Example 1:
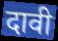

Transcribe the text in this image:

दावी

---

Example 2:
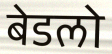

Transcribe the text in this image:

बेडलो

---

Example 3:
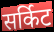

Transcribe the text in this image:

सर्किट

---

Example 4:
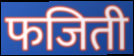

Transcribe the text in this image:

फजिती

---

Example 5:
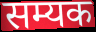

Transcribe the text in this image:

सम्यक